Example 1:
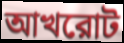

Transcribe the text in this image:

আখরোট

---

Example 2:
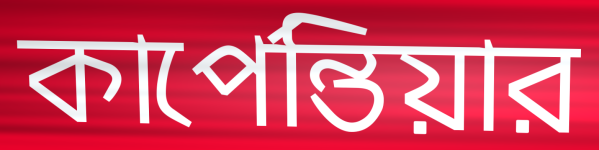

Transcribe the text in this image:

কার্পেন্তিয়ার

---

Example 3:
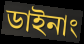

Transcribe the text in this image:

ডাইনাং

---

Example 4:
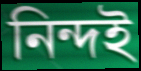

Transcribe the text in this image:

নিন্দই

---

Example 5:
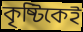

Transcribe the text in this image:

কৃষ্টিকেই